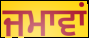
ਜਮਾਵਾਂ